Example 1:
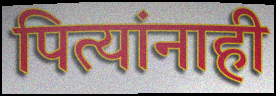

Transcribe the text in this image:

पित्यांनाही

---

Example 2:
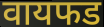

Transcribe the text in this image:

वायफड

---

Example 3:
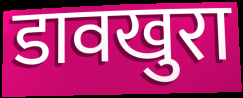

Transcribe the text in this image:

डावखुरा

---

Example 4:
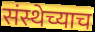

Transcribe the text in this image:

संस्थेच्याच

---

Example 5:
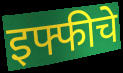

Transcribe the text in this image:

इफ्फीचे